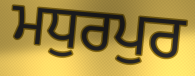
ਮਧੁਰਪੁਰ